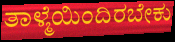
ತಾಳ್ಮೆಯಿಂದಿರಬೇಕು